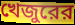
খেজুরের